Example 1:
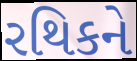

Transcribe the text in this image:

રથિકને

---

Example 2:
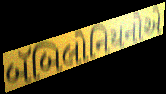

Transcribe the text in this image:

બૅબિલોનિયનોએ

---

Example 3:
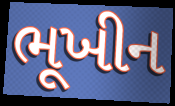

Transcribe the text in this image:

ભૂખીન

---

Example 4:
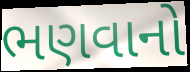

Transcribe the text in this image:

ભણવાનો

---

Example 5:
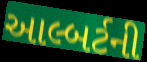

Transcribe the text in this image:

આલ્બર્ટની